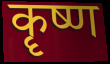
कॄष्ण